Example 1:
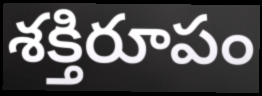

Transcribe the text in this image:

శక్తిరూపం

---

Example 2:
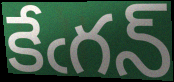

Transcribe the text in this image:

కేఁగన్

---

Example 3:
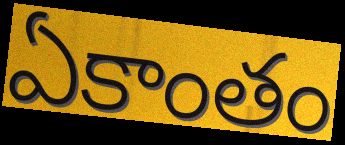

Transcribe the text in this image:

ఏకాంతం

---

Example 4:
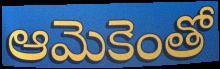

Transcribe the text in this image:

ఆమెకెంతో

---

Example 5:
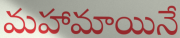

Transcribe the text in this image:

మహామాయినే